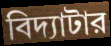
বিদ্যাটার